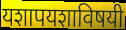
यशापयशाविषयी